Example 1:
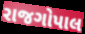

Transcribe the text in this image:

રાજગોપાલ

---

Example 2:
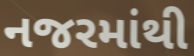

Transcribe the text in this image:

નજરમાંથી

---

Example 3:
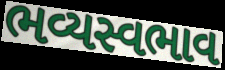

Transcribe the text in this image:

ભવ્યસ્વભાવ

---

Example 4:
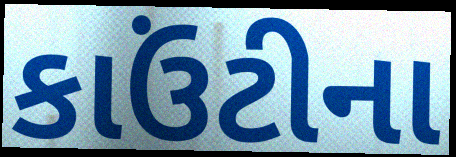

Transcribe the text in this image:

કાઉંટીના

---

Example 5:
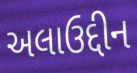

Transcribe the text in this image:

અલાઉદ્દીન